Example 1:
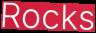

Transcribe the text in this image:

Rocks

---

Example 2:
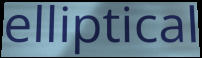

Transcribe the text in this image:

elliptical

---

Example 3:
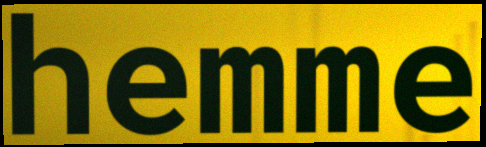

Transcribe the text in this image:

hemme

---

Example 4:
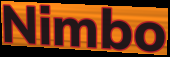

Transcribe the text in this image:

Nimbo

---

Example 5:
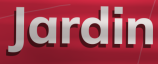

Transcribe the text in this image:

Jardin